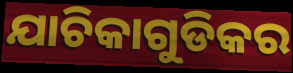
ଯାଚିକାଗୁଡିକର